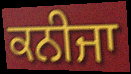
ਕਨੀਜਾ